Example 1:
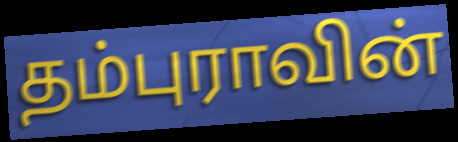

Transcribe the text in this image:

தம்புராவின்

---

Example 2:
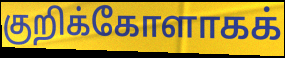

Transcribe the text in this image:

குறிக்கோளாகக்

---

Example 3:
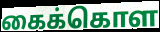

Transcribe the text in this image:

கைக்கொள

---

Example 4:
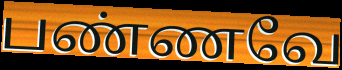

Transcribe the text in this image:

பண்ணவே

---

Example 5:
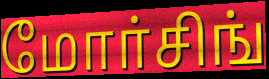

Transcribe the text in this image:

மோர்சிங்